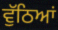
ਵੁੱਠਿਆਂ